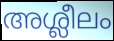
അശ്ലീലം